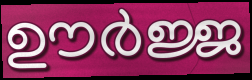
ഊർജ്ജ